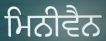
ਮਿਨੀਵੈਨ